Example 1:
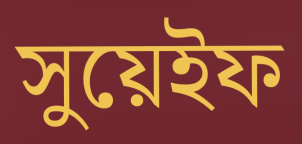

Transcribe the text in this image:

সুয়েইফ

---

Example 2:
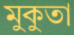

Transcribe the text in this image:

মুকুতা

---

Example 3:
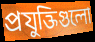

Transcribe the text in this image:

প্রযুক্তিগুলো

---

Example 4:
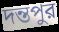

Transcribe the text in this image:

দন্তপুর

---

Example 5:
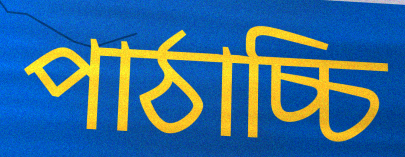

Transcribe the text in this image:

পাঠাচ্চি